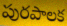
పురపాలక